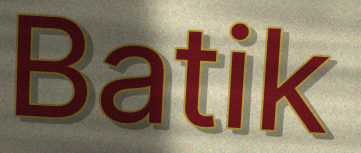
Batik